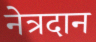
नेत्रदान